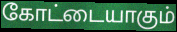
கோட்டையாகும்